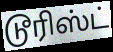
டூரிஸ்ட்